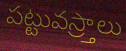
పట్టువస్ర్తాలు